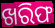
ଖରିଫ